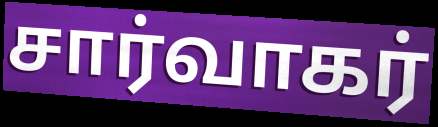
சார்வாகர்